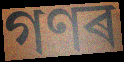
গণৰ